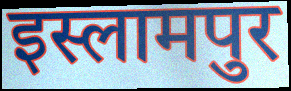
इस्लामपुर